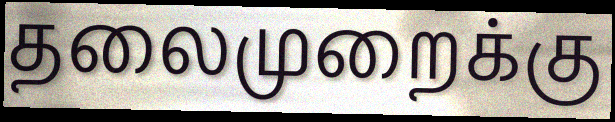
தலைமுறைக்கு